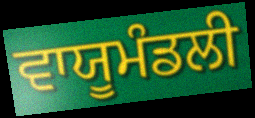
ਵਾਯੂਮੰਡਲੀ